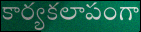
కార్యకలాపంగా